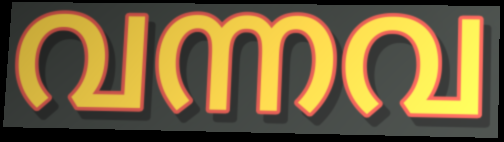
വന്നവ